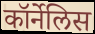
कॉर्नेलिस